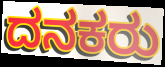
ದನಕರು